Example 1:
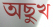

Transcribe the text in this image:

অছুখ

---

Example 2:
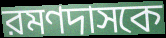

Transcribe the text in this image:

রমণদাসকে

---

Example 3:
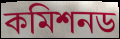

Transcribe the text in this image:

কমিশনড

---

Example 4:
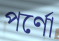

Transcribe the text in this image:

পর্ণো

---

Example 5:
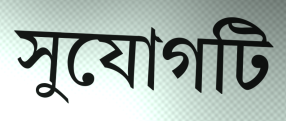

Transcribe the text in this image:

সুযোগটি